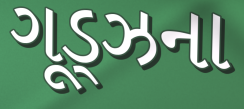
ગૂડ્ઝના